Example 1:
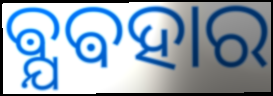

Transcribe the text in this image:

ଵ୍ଯଵହାର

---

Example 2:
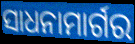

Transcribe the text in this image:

ସାଧନାମାର୍ଗର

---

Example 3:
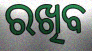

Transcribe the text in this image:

ରଖିବ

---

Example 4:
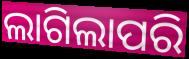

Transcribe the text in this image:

ଲାଗିଲାପରି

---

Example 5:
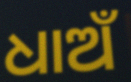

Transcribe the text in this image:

ଧାଅଁ